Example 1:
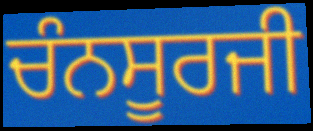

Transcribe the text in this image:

ਚੰਨਸੂਰਜੀ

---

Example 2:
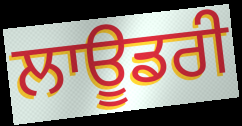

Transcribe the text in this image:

ਲਾਊਡਰੀ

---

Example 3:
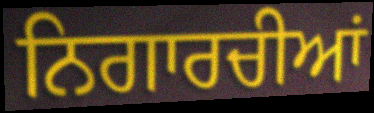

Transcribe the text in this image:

ਨਿਗਾਰਚੀਆਂ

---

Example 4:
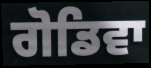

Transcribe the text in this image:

ਗੋਡਿਵਾ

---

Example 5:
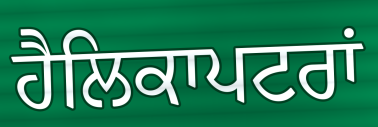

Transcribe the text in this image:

ਹੈਲਿਕਾਪਟਰਾਂ